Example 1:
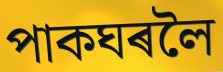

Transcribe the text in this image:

পাকঘৰলৈ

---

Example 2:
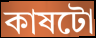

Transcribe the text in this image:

কাষটো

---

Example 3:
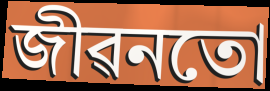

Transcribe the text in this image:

জীৱনতো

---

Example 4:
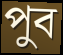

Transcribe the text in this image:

পুব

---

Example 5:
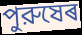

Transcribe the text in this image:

পুৰুষেৰ